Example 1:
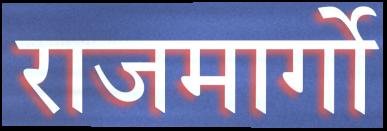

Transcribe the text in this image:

राजमार्गो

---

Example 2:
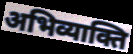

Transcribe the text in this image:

अभिव्याक्ति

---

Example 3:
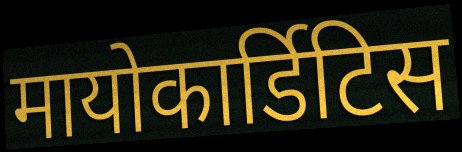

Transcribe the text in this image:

मायोकार्डिटिस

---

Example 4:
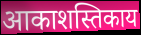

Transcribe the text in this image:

आकाशस्तिकाय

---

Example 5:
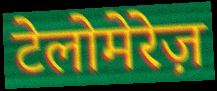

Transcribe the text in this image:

टेलोमेरेज़